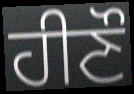
ਹੀਣੌ